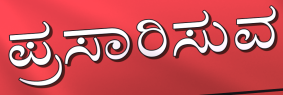
ಪ್ರಸಾರಿಸುವ